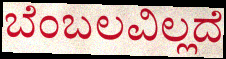
ಬೆಂಬಲವಿಲ್ಲದೆ